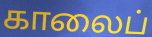
காலைப்